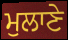
ਮੁਲਾਣੇ